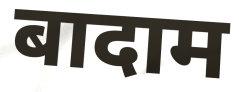
बादाम